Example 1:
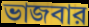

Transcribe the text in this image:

ভাজবার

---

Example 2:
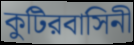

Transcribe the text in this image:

কুটিরবাসিনী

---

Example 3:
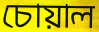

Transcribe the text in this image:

চোয়াল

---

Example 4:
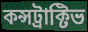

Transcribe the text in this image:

কন্সট্রাক্টিভ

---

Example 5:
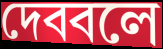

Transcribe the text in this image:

দেববলে